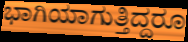
ಭಾಗಿಯಾಗುತ್ತಿದ್ದರೂ